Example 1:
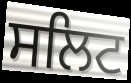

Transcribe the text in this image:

ਸਲਿਟ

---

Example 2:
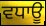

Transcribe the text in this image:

ਵਧਾਊ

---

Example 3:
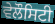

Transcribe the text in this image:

ਵੇਲੌਸਿਟੀ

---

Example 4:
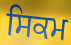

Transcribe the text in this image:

ਸਿਕਮ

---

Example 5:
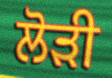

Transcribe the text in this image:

ਲੋੜੀ